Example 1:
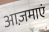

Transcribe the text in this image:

आज़माएं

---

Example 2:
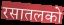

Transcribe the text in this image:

रसातलको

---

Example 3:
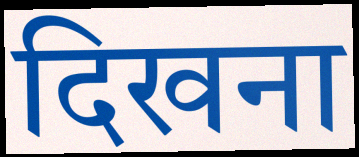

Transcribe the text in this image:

दिखना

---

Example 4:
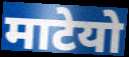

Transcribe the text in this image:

माटेयो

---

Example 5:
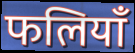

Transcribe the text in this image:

फलियाँ